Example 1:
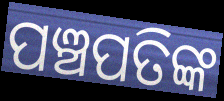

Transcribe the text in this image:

ପଞ୍ଚପତିଙ୍କ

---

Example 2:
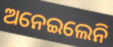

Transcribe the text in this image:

ଅନେଇଲେନି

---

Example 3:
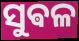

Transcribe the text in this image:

ସୁଵଳ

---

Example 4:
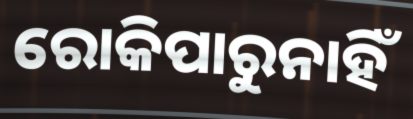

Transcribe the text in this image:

ରୋକିପାରୁନାହିଁ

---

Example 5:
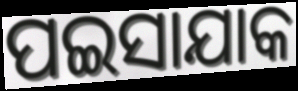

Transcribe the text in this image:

ପଇସାଯାକ